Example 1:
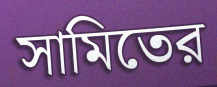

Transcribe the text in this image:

সামিতের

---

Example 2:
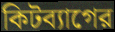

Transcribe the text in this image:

কিটব্যাগের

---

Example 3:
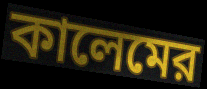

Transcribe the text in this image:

কালেমের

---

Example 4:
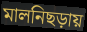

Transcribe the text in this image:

মালনিছড়ায়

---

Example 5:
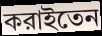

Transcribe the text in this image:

করাইতেন